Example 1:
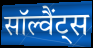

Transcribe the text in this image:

सॉल्वैंट्स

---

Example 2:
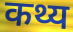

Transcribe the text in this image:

कथ्य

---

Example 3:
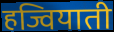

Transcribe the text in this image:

हज्वियाती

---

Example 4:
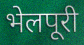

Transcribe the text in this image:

भेलपूरी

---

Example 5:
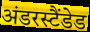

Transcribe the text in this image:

अंडरस्टैंडेड